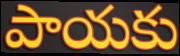
పాయకు